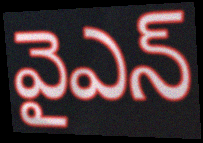
వైఎన్